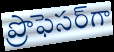
ప్రొఫెసర్‌గా